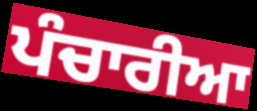
ਪੰਚਾਰੀਆ